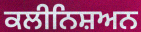
ਕਲੀਨਿਸ਼ਅਨ